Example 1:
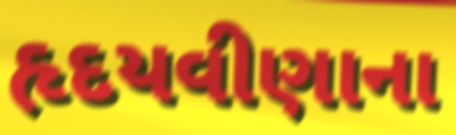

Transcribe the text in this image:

હૃદયવીણાના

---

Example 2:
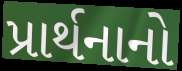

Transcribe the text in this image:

પ્રાર્થનાનો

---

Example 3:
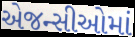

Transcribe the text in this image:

એજન્સીઓમાં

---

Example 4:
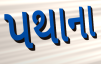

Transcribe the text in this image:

પથાના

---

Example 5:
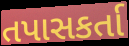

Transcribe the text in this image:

તપાસકર્તા